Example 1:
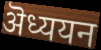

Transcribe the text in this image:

ऄध्ययन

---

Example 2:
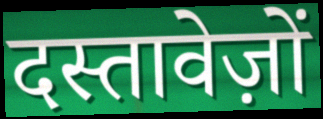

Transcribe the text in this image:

दस्तावेज़ों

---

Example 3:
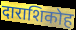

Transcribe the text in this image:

दाराशिकोह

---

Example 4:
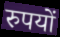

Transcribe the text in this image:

रुपयों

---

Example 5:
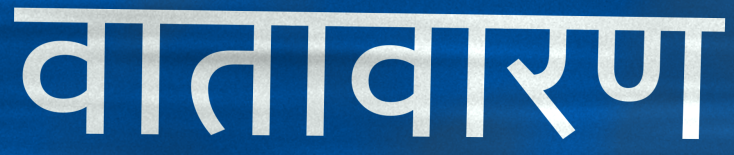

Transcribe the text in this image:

वातावारण